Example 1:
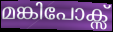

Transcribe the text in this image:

മങ്കിപോക്സ്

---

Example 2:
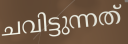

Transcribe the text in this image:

ചവിട്ടുന്നത്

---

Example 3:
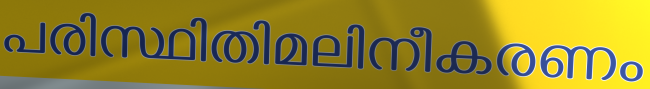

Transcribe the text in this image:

പരിസ്ഥിതിമലിനീകരണം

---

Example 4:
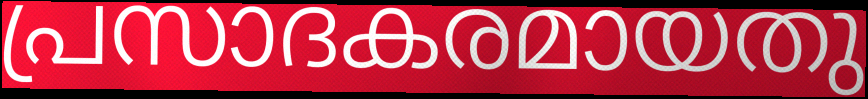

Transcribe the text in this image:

പ്രസാദകരമായതു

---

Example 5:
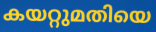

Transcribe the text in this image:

കയറ്റുമതിയെ